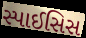
સ્પાઈસિસ